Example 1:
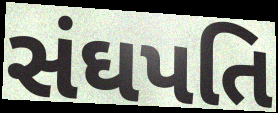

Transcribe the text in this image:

સંઘપતિ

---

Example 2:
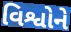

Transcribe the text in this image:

વિશ્વોને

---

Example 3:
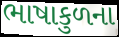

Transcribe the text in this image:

ભાષાકુળના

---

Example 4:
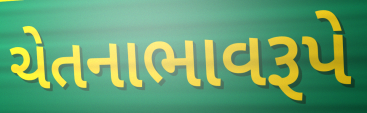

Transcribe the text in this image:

ચેતનાભાવરૂપે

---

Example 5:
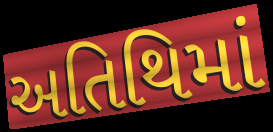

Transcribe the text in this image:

અતિથિમાં